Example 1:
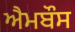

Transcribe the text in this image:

ਐਮਬੌਸ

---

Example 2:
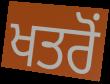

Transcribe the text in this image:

ਖਤਰੋਂ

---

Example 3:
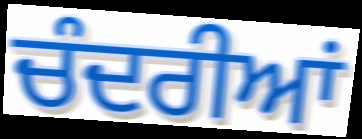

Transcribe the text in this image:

ਚੰਦਰੀਆਂ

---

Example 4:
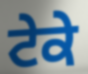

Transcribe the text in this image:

ਟੇਕੇ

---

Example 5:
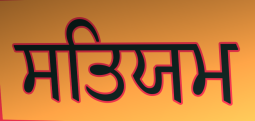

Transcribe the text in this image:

ਸਤਿਯਮ